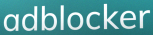
adblocker